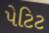
પેટિટ